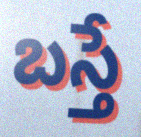
బస్తే